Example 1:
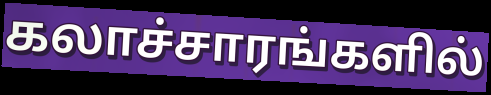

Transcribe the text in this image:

கலாச்சாரங்களில்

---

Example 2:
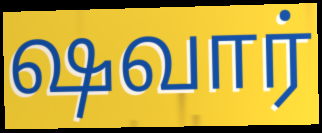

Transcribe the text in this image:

ஷவார்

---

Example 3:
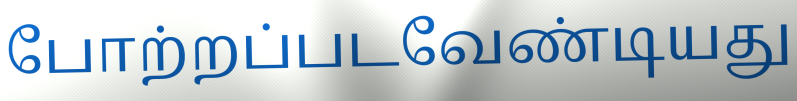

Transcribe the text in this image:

போற்றப்படவேண்டியது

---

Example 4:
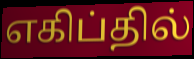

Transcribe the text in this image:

எகிப்தில்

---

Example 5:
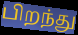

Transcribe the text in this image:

பிறந்து